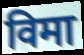
विमा